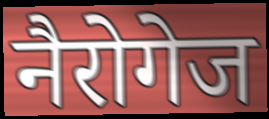
नैरोगेज